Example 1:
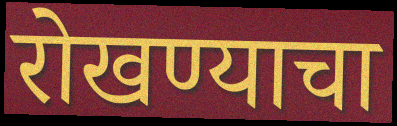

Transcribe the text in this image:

रोखण्याचा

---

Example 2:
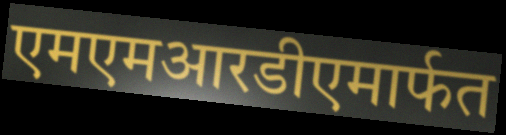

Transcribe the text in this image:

एमएमआरडीएमार्फत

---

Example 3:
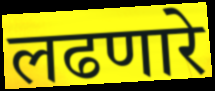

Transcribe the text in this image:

लढणारे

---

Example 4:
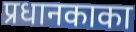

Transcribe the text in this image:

प्रधानकाका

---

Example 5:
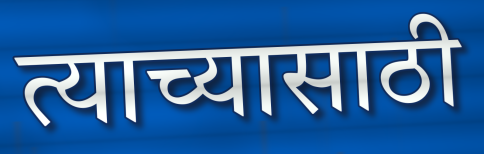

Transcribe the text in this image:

त्याच्यासाठी